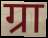
ग्रा